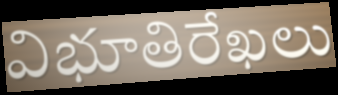
విభూతిరేఖలు